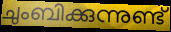
ചുംബിക്കുന്നുണ്ട്